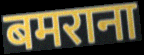
बमराना